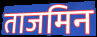
ताजमिन